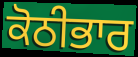
ਕੋਠੀਭਾਰ